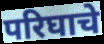
परिघाचे